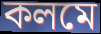
কলমে